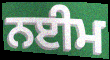
ਨਈਮ